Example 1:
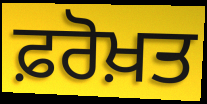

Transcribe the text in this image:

ਫ਼ਰੋਖ਼ਤ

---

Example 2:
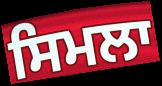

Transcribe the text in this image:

ਸਿਮਲਾ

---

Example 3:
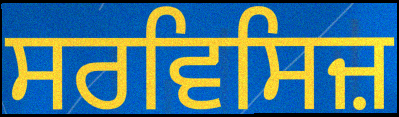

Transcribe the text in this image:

ਸਰਵਿਸਿਜ਼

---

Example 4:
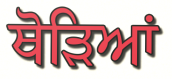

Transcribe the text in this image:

ਥੋੜਿਆਂ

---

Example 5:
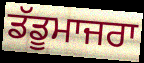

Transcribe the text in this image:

ਡੱਡੂਮਾਜਰਾ